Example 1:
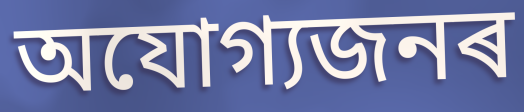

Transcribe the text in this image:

অযোগ্যজনৰ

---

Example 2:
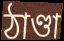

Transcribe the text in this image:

ঠাণ্ডা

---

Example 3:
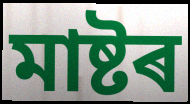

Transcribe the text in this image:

মাষ্টৰ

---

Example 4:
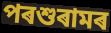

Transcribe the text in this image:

পৰশুৰামৰ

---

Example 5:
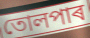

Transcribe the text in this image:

তোলপাৰ